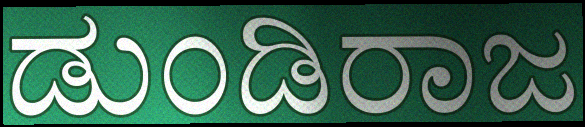
ಡುಂಡಿರಾಜ